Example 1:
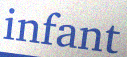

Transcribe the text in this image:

infant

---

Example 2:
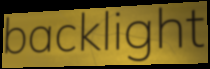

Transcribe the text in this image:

backlight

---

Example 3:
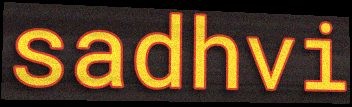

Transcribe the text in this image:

sadhvi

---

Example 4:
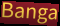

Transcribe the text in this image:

Banga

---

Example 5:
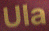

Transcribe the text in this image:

Ula